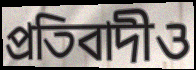
প্রতিবাদীও